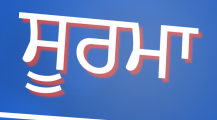
ਸੂਰਮਾ